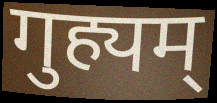
गुह्यम्